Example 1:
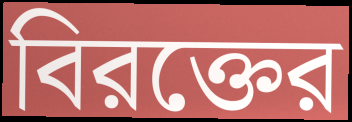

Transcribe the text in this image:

বিরক্তের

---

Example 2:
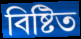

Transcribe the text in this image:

বিষ্টিত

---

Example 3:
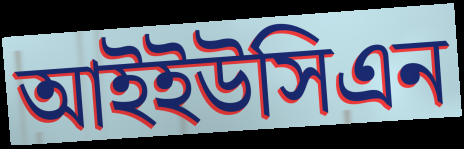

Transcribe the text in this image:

আইইউসিএন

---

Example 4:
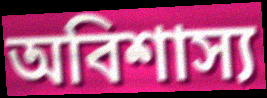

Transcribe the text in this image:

অবিশাস্য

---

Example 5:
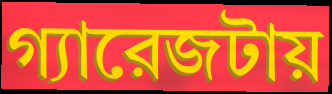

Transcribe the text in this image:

গ্যারেজটায়